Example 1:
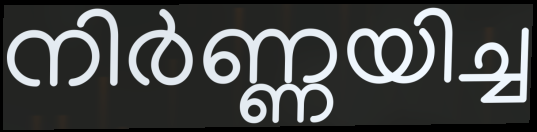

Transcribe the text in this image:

നിർണ്ണയിച്ച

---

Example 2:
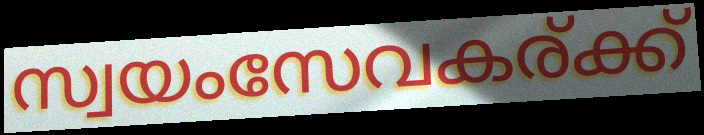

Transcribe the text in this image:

സ്വയംസേവകര്ക്ക്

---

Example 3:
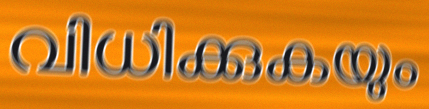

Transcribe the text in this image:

വിധിക്കുകയും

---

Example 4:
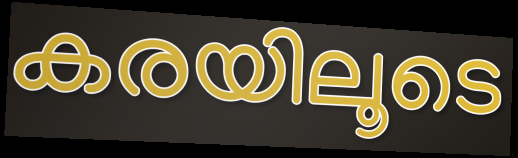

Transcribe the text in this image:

കരയിലൂടെ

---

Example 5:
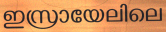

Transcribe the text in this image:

ഇസ്രായേലിലെ